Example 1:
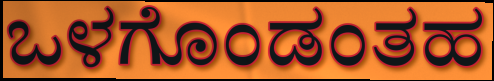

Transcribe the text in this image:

ಒಳಗೊಂಡಂತಹ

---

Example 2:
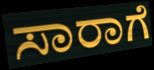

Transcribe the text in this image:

ಸಾರಾಗೆ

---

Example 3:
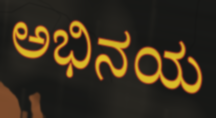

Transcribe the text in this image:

ಅಭಿನಯ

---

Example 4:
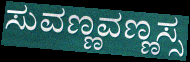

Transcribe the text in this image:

ಸುವಣ್ಣವಣ್ಣಸ್ಸ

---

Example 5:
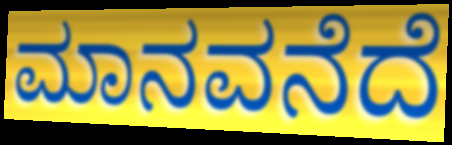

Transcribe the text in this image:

ಮಾನವನೆದೆ